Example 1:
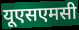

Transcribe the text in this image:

यूएसएमसी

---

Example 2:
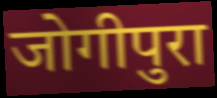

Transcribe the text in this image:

जोगीपुरा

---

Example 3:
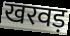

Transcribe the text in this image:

खरवड़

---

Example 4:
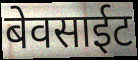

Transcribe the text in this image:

बेवसाईट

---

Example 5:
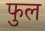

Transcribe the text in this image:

फुल